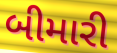
બીમારી